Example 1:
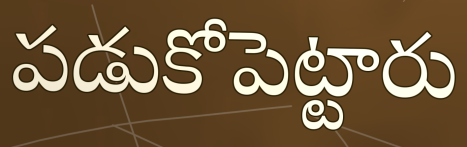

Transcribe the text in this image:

పడుకోపెట్టారు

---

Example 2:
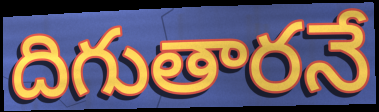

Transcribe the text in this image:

దిగుతారనే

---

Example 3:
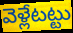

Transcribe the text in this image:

వెళ్లేటట్టు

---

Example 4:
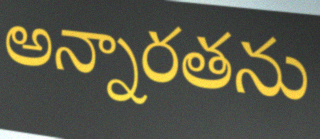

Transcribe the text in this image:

అన్నారతను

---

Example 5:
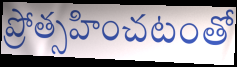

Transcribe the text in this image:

ప్రోత్సహించటంతో